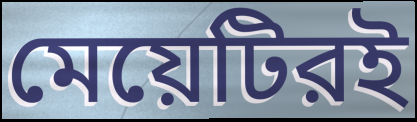
মেয়েটিরই